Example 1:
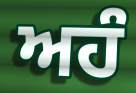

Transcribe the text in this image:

ਅਹੰ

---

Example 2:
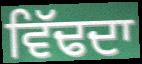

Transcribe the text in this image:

ਵਿੱਢਦਾ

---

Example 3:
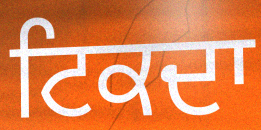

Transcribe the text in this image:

ਟਿਕਦਾ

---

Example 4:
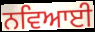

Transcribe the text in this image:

ਨਵਿਆਈ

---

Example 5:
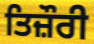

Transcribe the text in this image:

ਤਿਜ਼ੌਰੀ